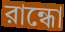
রান্ধো